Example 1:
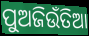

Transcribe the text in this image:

ପୁଅଜିଉଁତିଆ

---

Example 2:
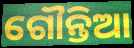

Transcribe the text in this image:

ଗୌନ୍ତିଆ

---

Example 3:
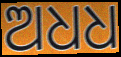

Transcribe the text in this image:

ଅଧଧ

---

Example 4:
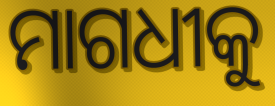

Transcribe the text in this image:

ମାଗଧୀକୁ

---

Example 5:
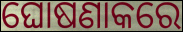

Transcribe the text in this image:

ଘୋଷଣାକରେ